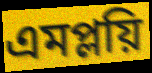
এমপ্লয়ি